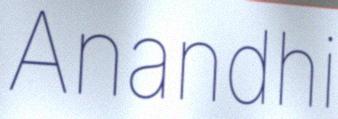
Anandhi